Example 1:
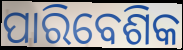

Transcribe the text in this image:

ପାରିବେଶିକ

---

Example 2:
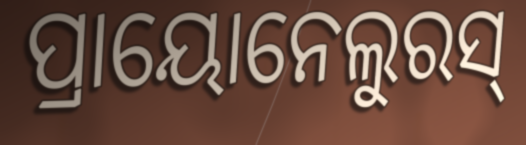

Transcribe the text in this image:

ପ୍ରାୟୋନେଲୁରସ୍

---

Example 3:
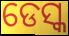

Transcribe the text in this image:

ଡେସ୍କ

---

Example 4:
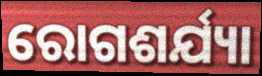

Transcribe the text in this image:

ରୋଗଶର୍ଯ୍ୟା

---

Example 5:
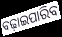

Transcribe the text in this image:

ବଢ଼ାଇପାରିବ